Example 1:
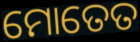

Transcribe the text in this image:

ମୋତେତ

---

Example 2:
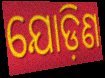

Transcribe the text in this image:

ଯୋଡ଼ିଣ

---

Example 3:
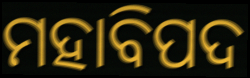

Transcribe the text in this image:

ମହାବିପଦ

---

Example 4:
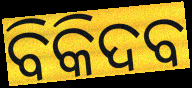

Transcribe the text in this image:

ବିକିଦବ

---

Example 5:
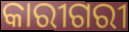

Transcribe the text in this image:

କାରୀଗରୀ